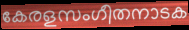
കേരളസംഗീതനാടക